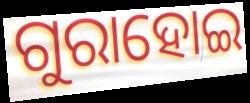
ଗୁରାହୋଇ